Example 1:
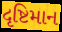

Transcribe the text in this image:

દૃષ્ટિમાન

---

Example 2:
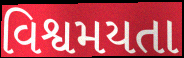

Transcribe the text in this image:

વિશ્વમયતા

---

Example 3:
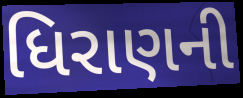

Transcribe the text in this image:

ધિરાણની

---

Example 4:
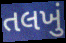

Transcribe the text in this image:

તલખું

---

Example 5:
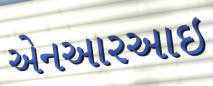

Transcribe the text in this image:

એનઆરઆઇ